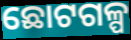
ଛୋଟଗଳ୍ପ